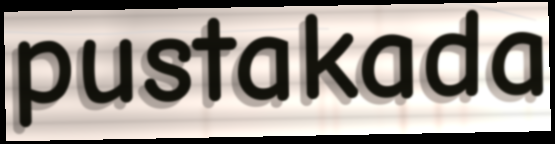
pustakada